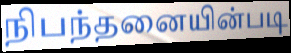
நிபந்தனையின்படி